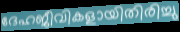
ദേഹജീവികളായിതിരിച്ചു